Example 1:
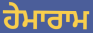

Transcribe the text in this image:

ਹੇਮਾਰਾਮ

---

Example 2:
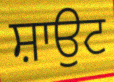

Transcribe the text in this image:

ਸ਼ਾਉਟ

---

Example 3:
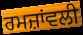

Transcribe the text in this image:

ਰਮਜ਼ਾਂਵਲੀ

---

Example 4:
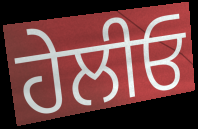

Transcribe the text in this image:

ਹੇਲੀਓ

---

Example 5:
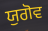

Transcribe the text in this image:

ਯੁਗੋਵ